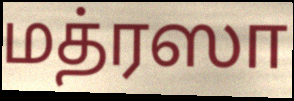
மத்ரஸா